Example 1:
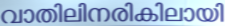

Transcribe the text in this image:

വാതിലിനരികിലായി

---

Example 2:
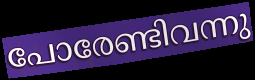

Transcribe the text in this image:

പോരേണ്ടിവന്നു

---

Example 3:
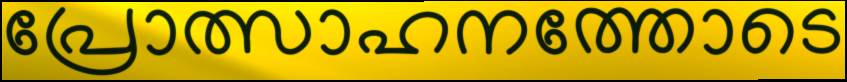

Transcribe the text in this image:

പ്രോത്സാഹനത്തോടെ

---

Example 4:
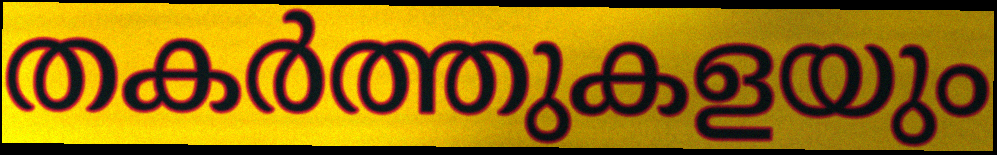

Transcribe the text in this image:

തകർത്തുകളയും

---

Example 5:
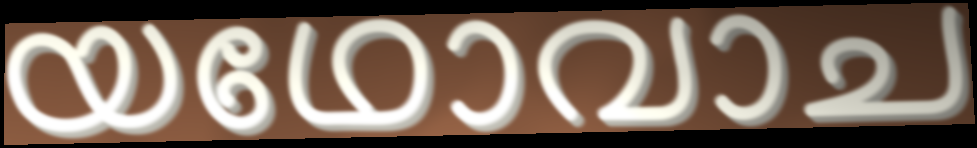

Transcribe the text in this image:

യഥോവാച